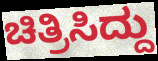
ಚಿತ್ರಿಸಿದ್ದು